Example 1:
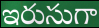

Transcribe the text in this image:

ఇరుసుగా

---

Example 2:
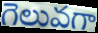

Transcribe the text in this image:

గెలువగా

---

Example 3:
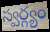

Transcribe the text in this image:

స్వర్గ్యం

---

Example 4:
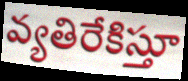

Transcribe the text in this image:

వ్యతిరేకిస్తూ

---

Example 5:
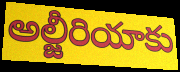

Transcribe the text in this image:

అల్జీరియాకు